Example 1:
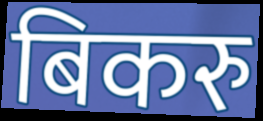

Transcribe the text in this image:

बिकरु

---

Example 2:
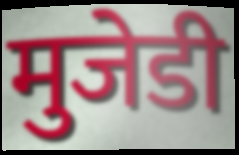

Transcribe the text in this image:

मुजेडी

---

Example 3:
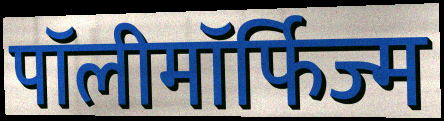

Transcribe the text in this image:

पॉलीमॉर्फिज्म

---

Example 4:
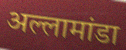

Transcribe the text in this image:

अल्लामांडा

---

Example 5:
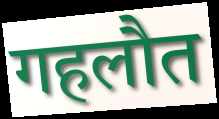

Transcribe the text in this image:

गहलौत